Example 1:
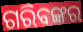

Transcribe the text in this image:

ଗରିବଙ୍କର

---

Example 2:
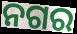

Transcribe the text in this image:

ନଗର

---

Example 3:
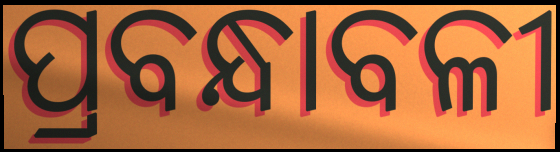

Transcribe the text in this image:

ପ୍ରବନ୍ଧାବଳୀ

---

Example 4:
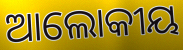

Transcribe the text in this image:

ଆଲୋକୀୟ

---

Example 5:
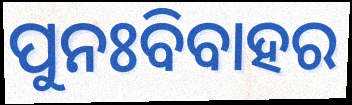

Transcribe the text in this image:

ପୁନଃବିବାହର